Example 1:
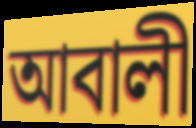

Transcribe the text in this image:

আবালী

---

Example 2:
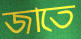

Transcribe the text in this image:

জাতে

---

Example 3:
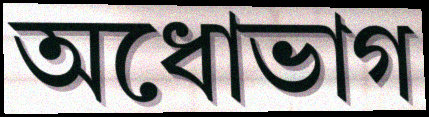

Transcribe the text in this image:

অধোভাগ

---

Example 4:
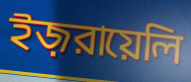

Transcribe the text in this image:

ইজ়রায়েলি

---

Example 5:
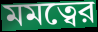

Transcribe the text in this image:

মমত্বের